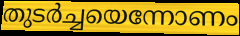
തുടർച്ചയെന്നോണം